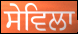
ਸੇਵਿਲਾ